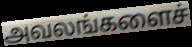
அவலங்களைச்